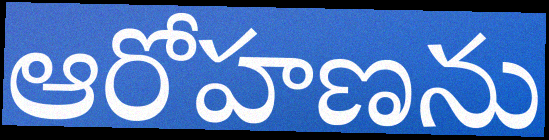
ఆరోహణను